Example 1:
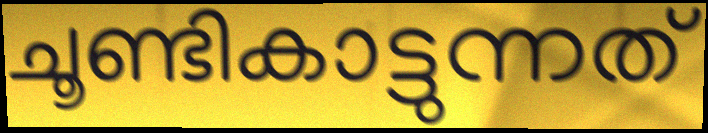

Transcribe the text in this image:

ചൂണ്ടികാട്ടുന്നത്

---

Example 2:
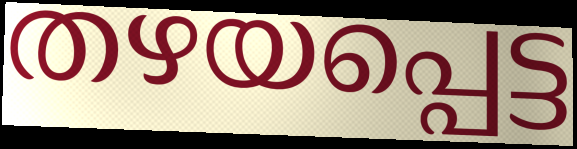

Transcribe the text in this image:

തഴയപ്പെട്ട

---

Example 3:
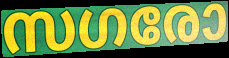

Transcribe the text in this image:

സഗരോ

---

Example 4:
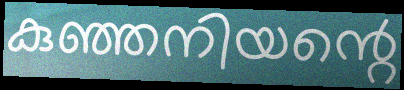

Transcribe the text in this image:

കുഞ്ഞനിയന്റെ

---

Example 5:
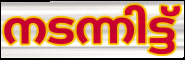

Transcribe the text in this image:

നടന്നിട്ട്